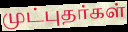
முட்புதர்கள்